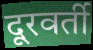
दूरवर्ती